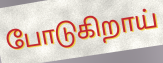
போடுகிறாய்